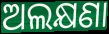
ଅଲକ୍ଷଣା